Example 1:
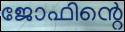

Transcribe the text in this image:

ജോഫിന്റെ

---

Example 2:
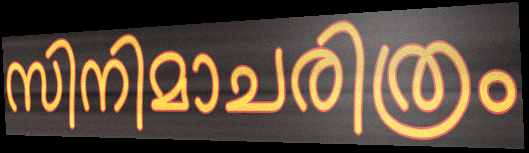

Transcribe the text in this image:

സിനിമാചരിത്രം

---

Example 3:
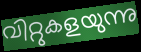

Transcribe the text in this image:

വിറ്റുകളയുന്നു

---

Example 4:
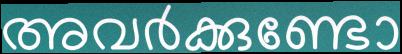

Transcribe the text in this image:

അവർക്കുണ്ടോ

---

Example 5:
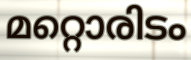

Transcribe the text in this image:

മറ്റൊരിടം